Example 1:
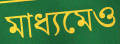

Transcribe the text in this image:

মাধ্যমেও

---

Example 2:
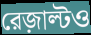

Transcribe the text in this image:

রেজ়াল্টও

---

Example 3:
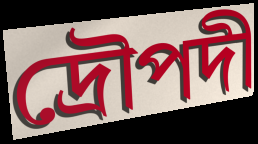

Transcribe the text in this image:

দ্রৌপদী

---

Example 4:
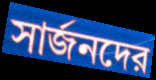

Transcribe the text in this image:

সার্জনদের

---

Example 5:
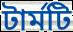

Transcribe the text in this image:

টার্মটি